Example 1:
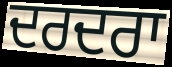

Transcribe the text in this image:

ਦਰਦਰਾ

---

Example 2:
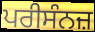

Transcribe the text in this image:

ਪਰੀਸੰਨਜ਼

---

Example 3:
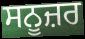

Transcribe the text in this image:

ਸਨੂਜ਼ਰ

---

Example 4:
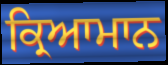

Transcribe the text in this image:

ਕ੍ਰਿਆਮਾਨ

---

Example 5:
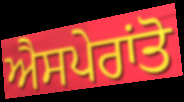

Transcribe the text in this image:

ਐਸਪੇਰਾਂਤੋ